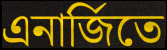
এনার্জিতে